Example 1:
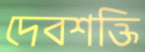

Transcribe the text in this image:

দেবশক্তি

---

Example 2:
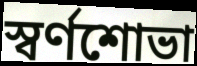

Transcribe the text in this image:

স্বর্ণশোভা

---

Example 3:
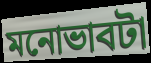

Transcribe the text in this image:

মনোভাবটা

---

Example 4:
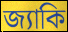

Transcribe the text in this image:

জ্যাকি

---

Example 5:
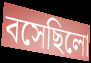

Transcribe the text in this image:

বসেছিলো